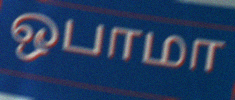
ஒபாமா